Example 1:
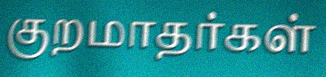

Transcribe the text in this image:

குறமாதர்கள்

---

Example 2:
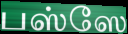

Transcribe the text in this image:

பஸ்ஸே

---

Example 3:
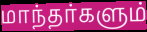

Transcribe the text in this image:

மாந்தர்களும்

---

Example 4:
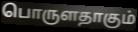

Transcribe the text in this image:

பொருளதாகும்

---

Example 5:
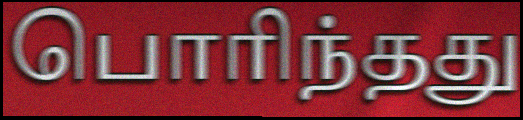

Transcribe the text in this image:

பொரிந்தது